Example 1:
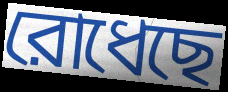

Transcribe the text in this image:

রোধেছে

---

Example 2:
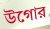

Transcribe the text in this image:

উগোর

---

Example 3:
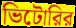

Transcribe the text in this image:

ভিটোরির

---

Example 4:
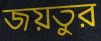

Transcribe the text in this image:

জয়তুর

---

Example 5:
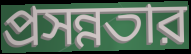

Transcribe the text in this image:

প্রসন্নতার